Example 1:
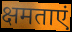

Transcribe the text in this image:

क्षमताएं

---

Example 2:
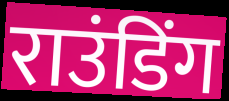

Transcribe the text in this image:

राउंडिंग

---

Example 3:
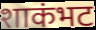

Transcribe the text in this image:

शाकंभट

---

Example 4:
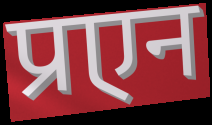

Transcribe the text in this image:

प्रएन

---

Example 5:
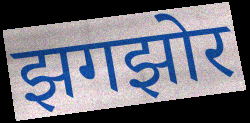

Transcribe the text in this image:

झगझोर